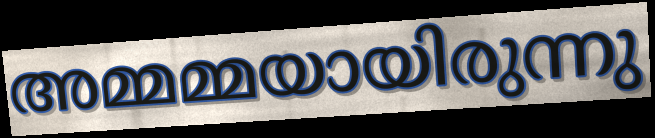
അമ്മമ്മയായിരുന്നു